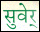
सुवेर्